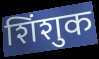
शिंशुक